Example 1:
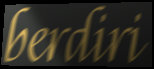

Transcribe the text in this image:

berdiri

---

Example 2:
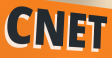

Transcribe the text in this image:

CNET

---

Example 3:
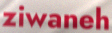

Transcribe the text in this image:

ziwaneh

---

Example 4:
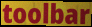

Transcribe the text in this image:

toolbar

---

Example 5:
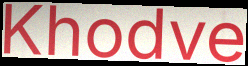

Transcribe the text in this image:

Khodve